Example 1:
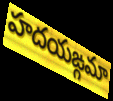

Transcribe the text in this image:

హదయఙ్గమా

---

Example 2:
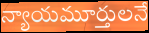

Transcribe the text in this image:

న్యాయమూర్తులనే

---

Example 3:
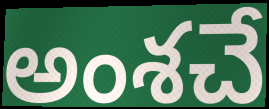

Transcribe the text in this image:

అంశచే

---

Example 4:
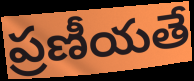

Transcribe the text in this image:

ప్రణీయతే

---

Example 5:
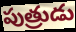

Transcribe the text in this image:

పుత్రుడు